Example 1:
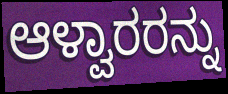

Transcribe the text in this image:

ಆಳ್ವಾರರನ್ನು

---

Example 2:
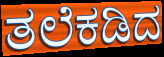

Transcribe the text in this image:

ತಲೆಕಡಿದ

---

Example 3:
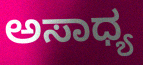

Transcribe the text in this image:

ಅಸಾಧ್ಯ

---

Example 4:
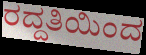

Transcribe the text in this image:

ರದ್ದತಿಯಿಂದ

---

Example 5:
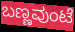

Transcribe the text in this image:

ಬಣ್ಣವುಂಟೆ